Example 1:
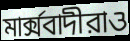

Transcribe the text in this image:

মার্ক্সবাদীরাও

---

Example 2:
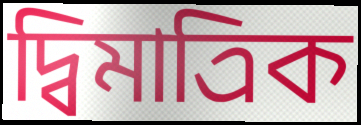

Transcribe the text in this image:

দ্বিমাত্রিক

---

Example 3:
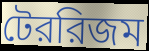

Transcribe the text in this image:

টেররিজম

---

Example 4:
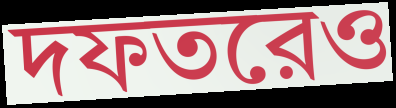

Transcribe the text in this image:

দফতরেও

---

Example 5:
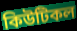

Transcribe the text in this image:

কিউটিকল